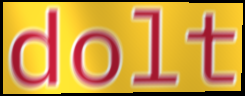
dolt